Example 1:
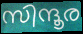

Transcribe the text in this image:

സിന്ദൂര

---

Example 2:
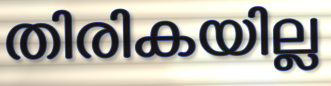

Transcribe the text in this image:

തിരികയില്ല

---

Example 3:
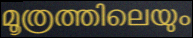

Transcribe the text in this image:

മൂത്രത്തിലെയും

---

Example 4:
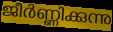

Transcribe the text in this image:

ജീർണ്ണിക്കുന്നു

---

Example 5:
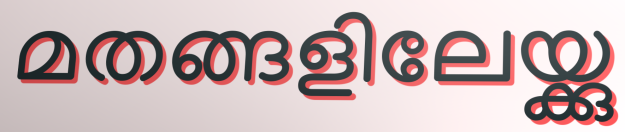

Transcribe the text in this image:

മതങ്ങളിലേയ്ക്കു